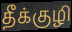
தீக்குழி